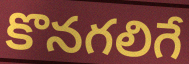
కొనగలిగే